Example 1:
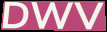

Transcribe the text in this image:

DWV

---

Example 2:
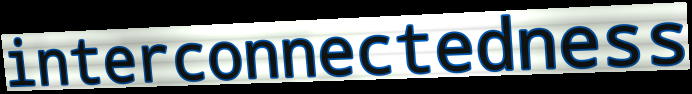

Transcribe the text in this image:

interconnectedness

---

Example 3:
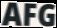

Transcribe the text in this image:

AFG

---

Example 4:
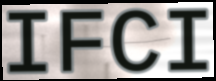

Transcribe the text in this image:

IFCI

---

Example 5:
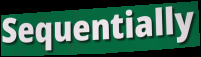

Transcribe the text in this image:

Sequentially